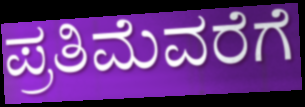
ಪ್ರತಿಮೆವರೆಗೆ